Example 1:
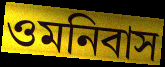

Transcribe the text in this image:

ওমনিবাস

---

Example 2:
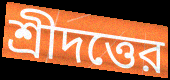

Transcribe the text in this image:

শ্রীদত্তের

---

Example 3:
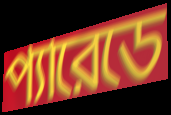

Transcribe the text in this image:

প্যারেডে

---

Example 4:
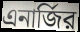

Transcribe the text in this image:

এনার্জির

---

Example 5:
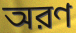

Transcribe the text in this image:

অরণ